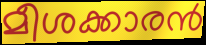
മീശക്കാരൻ